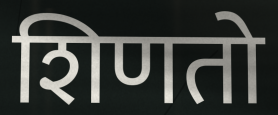
शिणतो